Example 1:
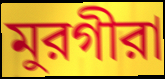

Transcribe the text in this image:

মুরগীরা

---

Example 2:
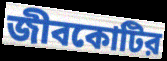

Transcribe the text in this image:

জীবকোটির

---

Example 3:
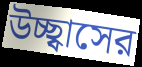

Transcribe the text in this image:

উচ্ছ্বাসের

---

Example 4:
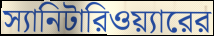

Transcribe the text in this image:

স্যানিটারিওয়্যারের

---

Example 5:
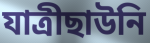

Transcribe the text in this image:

যাত্রীছাউনি